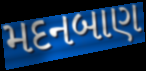
મદનબાણ